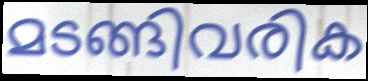
മടങ്ങിവരിക